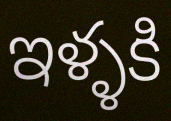
ఇళ్ళకి